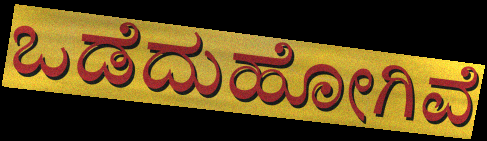
ಒಡೆದುಹೋಗಿವೆ